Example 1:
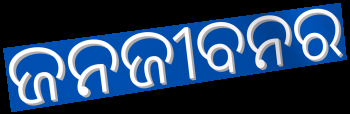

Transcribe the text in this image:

ଜନଜୀବନର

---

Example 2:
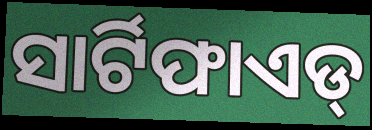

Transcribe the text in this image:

ସାର୍ଟିଫାଏଡ୍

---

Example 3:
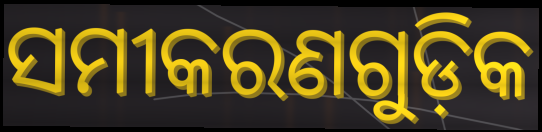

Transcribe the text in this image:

ସମୀକରଣଗୁଡ଼ିକ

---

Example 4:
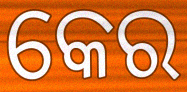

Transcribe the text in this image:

କେର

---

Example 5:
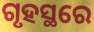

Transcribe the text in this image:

ଗୃହସ୍ଥରେ